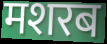
मशरब